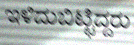
ಇಳಿದುಬಿಟ್ಟಿದ್ದರು